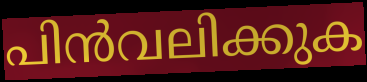
പിൻവലിക്കുക